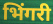
भिंगरी